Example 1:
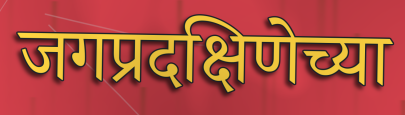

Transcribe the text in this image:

जगप्रदक्षिणेच्या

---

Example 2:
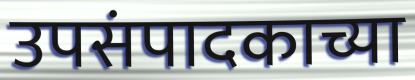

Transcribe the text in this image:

उपसंपादकाच्या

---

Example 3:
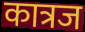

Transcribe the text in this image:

कात्रज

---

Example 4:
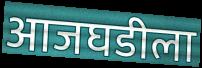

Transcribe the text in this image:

आजघडीला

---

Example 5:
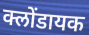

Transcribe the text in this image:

क्लोंडायक